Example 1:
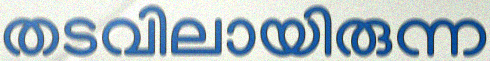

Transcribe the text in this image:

തടവിലായിരുന്ന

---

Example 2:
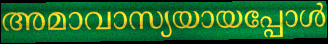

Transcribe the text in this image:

അമാവാസ്യയായപ്പോൾ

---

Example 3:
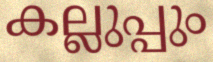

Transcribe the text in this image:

കല്ലുപ്പും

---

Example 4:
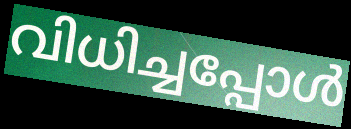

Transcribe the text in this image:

വിധിച്ചപ്പോൾ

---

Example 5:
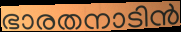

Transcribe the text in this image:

ഭാരതനാടിൻ